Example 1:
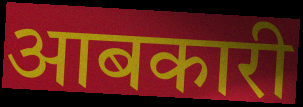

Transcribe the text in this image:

आबकारी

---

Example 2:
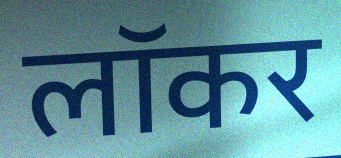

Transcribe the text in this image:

लॉकर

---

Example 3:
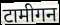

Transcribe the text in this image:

टामीगन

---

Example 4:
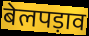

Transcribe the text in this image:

बेलपड़ाव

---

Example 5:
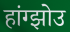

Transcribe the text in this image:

हांग्झोउ